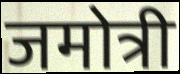
जमोत्री